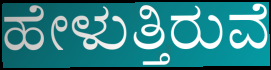
ಹೇಳುತ್ತಿರುವೆ